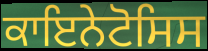
ਕਾਇਨੇਟੋਸਿਸ